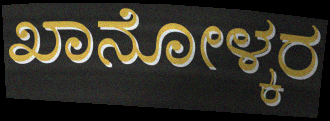
ಖಾನೋಳ್ಕರ